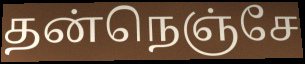
தன்நெஞ்சே